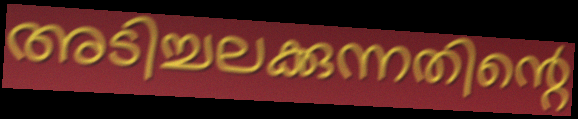
അടിച്ചലക്കുന്നതിന്റെ